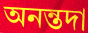
অনন্তদা